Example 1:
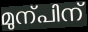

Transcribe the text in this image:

മുന്പിന്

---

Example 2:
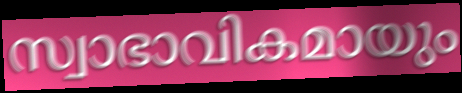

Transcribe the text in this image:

സ്വാഭാവികമായും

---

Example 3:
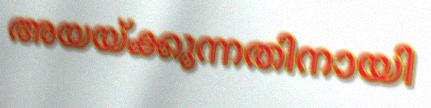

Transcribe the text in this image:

അയയ്ക്കുന്നതിനായി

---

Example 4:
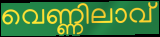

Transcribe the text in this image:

വെണ്ണിലാവ്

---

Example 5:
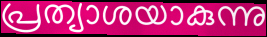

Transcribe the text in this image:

പ്രത്യാശയാകുന്നു